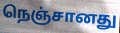
நெஞ்சானது